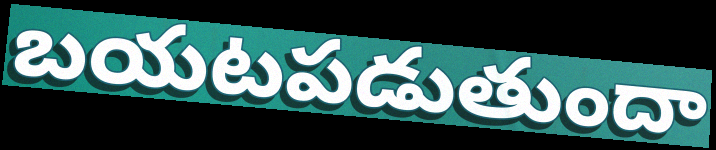
బయటపడుతుందా